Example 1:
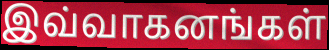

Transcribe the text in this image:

இவ்வாகனங்கள்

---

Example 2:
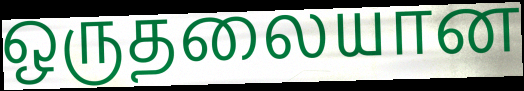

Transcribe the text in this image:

ஒருதலையான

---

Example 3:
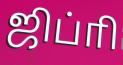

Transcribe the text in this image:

ஜிப்ரி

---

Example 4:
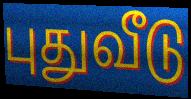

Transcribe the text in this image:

புதுவீடு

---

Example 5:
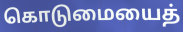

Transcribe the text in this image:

கொடுமையைத்